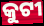
କୁଟୀ